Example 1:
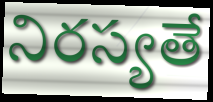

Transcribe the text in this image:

నిరస్యతే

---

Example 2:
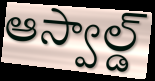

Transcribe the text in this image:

ఆస్వాల్డ్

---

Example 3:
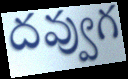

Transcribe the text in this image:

దవ్వుగ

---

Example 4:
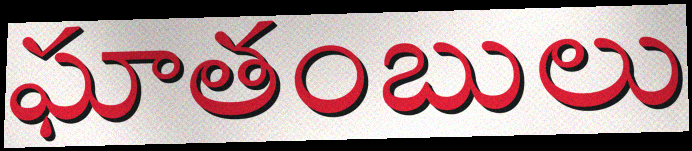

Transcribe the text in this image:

ఘాతంబులు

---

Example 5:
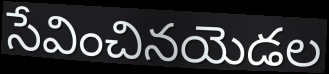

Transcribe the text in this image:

సేవించినయెడల